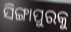
ସିଙ୍ଗାପୁରକୁ